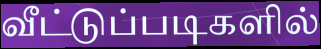
வீட்டுப்படிகளில்